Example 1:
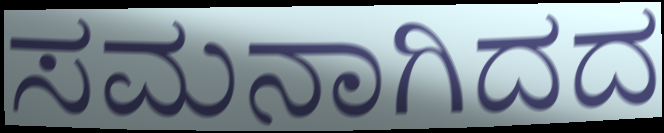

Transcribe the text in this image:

ಸಮನಾಗಿದದ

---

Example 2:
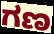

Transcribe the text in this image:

ಗಣ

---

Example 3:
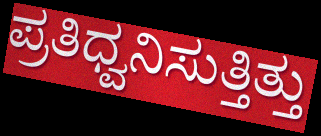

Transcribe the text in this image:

ಪ್ರತಿಧ್ವನಿಸುತ್ತಿತ್ತು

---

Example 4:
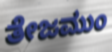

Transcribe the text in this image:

ತೇಜಮುಂ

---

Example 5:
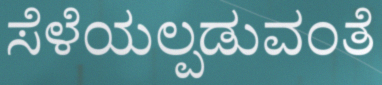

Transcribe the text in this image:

ಸೆಳೆಯಲ್ಪಡುವಂತೆ